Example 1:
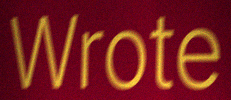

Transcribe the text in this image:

Wrote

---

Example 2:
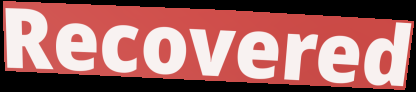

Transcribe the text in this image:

Recovered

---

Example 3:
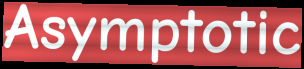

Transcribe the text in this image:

Asymptotic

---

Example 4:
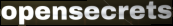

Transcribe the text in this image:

opensecrets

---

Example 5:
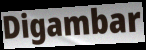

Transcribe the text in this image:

Digambar